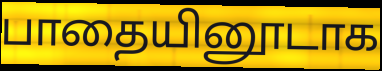
பாதையினூடாக